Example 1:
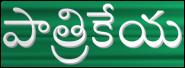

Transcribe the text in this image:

పాత్రికేయ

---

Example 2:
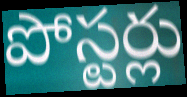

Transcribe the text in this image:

పోస్టర్లు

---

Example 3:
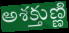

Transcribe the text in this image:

అశక్తుణ్ణి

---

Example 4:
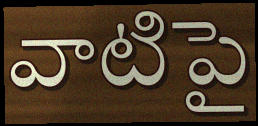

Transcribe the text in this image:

వాటిపై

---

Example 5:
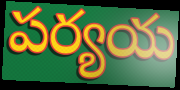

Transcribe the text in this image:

పర్యయ